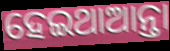
ହେଇଥାଆନ୍ତା